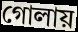
গোলায়